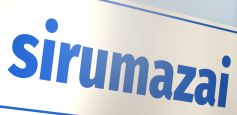
sirumazai